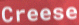
Creese